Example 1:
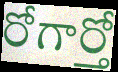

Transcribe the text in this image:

రోగార్తో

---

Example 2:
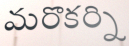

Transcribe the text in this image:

మరొకర్ని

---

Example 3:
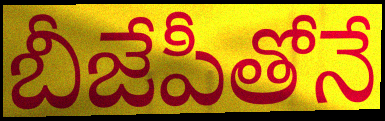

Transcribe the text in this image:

బీజేపీతోనే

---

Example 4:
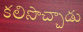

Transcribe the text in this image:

కలిసొచ్చాడు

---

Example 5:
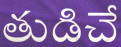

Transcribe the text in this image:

తుడిచే